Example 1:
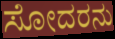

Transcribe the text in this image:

ಸೋದರನು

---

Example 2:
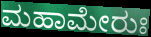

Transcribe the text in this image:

ಮಹಾಮೇರುಃ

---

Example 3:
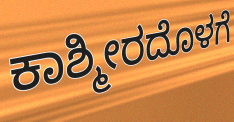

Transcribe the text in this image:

ಕಾಶ್ಮೀರದೊಳಗೆ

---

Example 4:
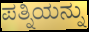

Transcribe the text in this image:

ಪತ್ನಿಯನ್ನು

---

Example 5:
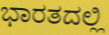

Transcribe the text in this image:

ಭಾರತದಲ್ಲಿ